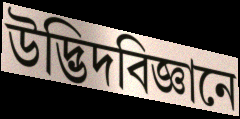
উদ্ভিদবিজ্ঞানে